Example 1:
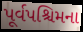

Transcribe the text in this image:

પૂર્વપશ્ચિમના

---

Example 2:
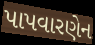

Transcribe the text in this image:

પાપવારણેન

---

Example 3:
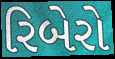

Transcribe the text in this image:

રિબેરો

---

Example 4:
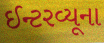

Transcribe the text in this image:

ઈન્ટરવ્યૂના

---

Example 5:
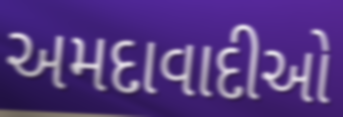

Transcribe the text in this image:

અમદાવાદીઓ